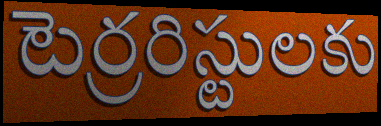
టెర్రరిస్టులకు